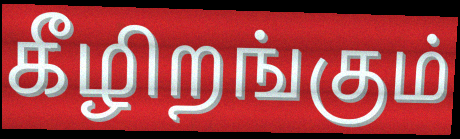
கீழிறங்கும்